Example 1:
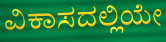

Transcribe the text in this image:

ವಿಕಾಸದಲ್ಲಿಯೇ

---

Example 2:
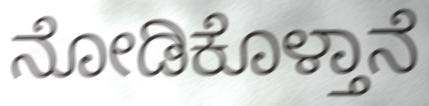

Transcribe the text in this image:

ನೋಡಿಕೊಳ್ತಾನೆ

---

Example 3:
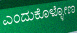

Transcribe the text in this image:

ಎಂದುಕೊಳ್ಳೋಣ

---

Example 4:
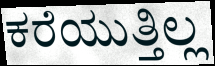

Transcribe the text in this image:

ಕರೆಯುತ್ತಿಲ್ಲ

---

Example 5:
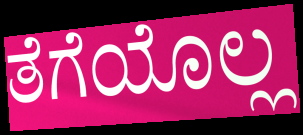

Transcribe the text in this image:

ತೆಗೆಯೊಲ್ಲ